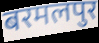
बरमलपुर